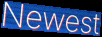
Newest